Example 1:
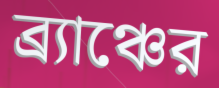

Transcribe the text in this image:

ব্র্যাঞ্চের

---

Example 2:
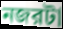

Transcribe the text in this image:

নজরটা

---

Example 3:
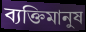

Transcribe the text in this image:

ব্যক্তিমানুষ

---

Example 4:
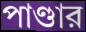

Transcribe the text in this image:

পাণ্ডার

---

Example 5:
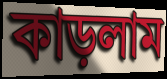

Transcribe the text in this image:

কাড়লাম